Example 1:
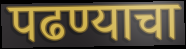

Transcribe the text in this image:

पढण्याचा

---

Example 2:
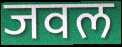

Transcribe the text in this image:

जवल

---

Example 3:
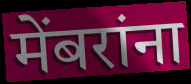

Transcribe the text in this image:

मेंबरांना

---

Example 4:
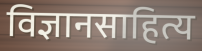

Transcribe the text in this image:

विज्ञानसाहित्य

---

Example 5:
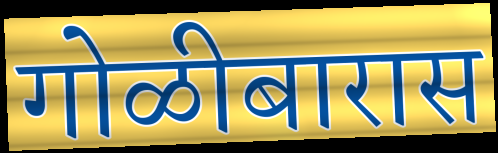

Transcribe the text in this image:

गोळीबारास